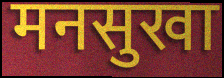
मनसुखा